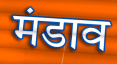
मंडाव